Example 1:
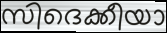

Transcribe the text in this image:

സിദെക്കീയാ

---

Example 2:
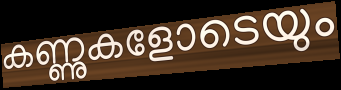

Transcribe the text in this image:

കണ്ണുകളോടെയും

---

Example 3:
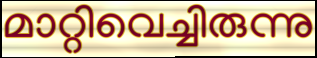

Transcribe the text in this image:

മാറ്റിവെച്ചിരുന്നു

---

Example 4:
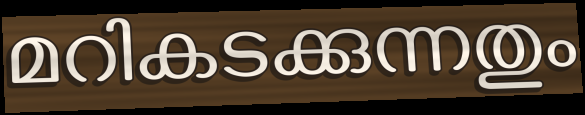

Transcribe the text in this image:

മറികടക്കുന്നതും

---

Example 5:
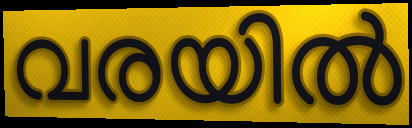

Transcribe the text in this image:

വരയിൽ